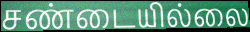
சண்டையில்லை